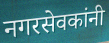
नगरसेवकांनी